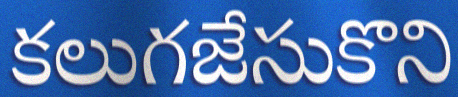
కలుగజేసుకొని